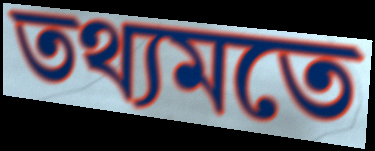
তথ্যমতে